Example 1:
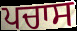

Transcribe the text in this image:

ਪਚਾਸ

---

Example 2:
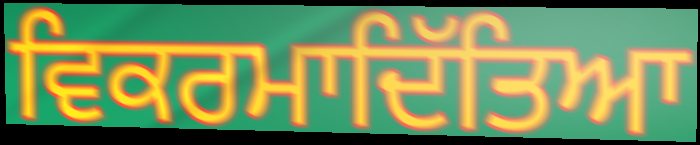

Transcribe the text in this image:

ਵਿਕਰਮਾਦਿੱਤਿਆ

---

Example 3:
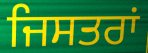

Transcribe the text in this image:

ਜਿਸਤਰਾਂ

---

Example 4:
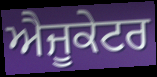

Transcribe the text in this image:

ਐਜੂਕੇਟਰ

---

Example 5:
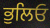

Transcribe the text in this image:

ਭੁਲਿਓ